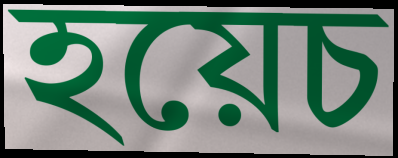
হয়েচ